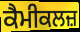
ਕੈਮੀਕਲਜ਼